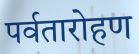
पर्वतारोहण